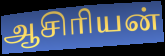
ஆசிரியன்